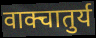
वाक्चातुर्य